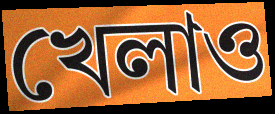
খেলাও